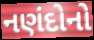
નણંદોનો